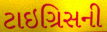
ટાઇગ્રિસની